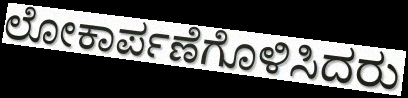
ಲೋಕಾರ್ಪಣೆಗೊಳಿಸಿದರು